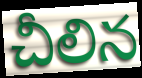
చీలిన